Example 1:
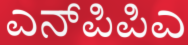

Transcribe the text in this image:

ಎನ್‌ಪಿಪಿಎ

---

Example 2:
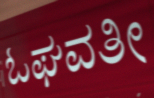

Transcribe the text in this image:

ಓಘವತೀ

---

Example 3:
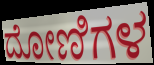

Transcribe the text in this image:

ದೋಣಿಗಳ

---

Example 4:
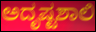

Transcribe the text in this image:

ಅದೃಷ್ಟಶಾಲಿ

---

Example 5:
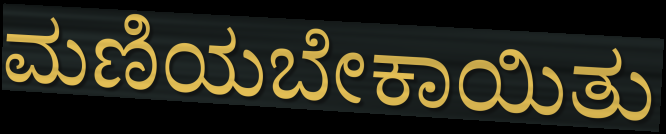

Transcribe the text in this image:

ಮಣಿಯಬೇಕಾಯಿತು